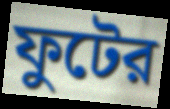
ফুটের